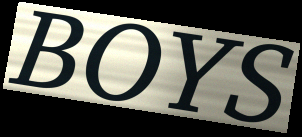
BOYS